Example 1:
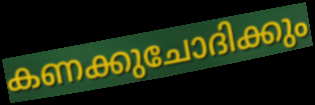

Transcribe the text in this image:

കണക്കുചോദിക്കും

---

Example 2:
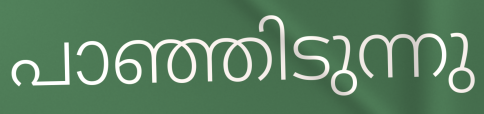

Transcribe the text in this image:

പാഞ്ഞിടുന്നു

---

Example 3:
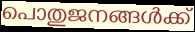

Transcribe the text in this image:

പൊതുജനങ്ങൾക്ക്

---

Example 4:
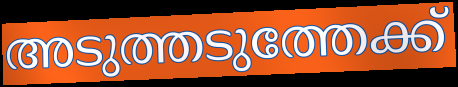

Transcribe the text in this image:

അടുത്തടുത്തേക്ക്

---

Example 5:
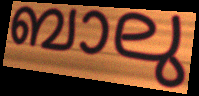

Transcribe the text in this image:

ബാലു